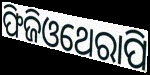
ଫିଜିଓଥେରାପି